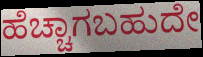
ಹೆಚ್ಚಾಗಬಹುದೇ